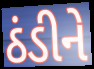
ઠંડીને